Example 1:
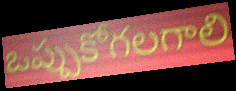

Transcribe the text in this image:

ఒప్పుకోగలగాలి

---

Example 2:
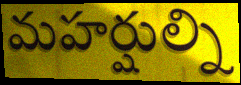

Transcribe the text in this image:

మహర్షుల్ని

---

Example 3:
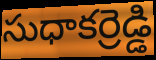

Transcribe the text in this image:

సుధాకర్రెడ్డి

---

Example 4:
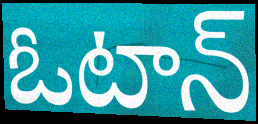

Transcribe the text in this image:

ఓటాన్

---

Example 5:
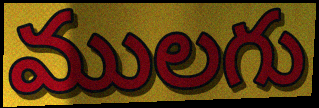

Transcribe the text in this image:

ములగు